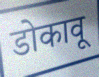
डोकावू